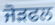
ਜੋੜਫਲ